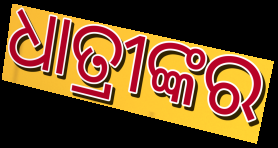
ଧାତ୍ରୀଙ୍କର